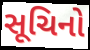
સૂચિનો